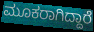
ಮೂಕರಾಗಿದ್ದಾರೆ